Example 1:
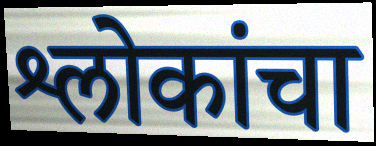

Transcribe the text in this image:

श्लोकांचा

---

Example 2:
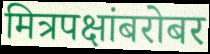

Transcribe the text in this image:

मित्रपक्षांबरोबर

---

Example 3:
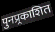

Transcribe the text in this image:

पुनप्र्रकाशित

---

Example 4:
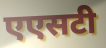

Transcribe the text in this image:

एएसटी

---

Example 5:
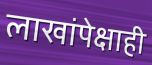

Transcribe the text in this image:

लाखांपेक्षाही